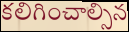
కలిగించాల్సిన